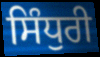
ਸਿੰਧੁਰੀ